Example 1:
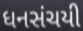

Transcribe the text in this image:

ધનસંચયી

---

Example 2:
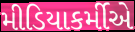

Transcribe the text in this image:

મીડિયાકર્મીએ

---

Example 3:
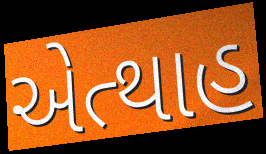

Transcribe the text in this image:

એત્થાહ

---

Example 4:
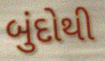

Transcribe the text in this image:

બુંદોથી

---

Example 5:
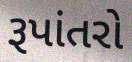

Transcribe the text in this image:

રૂપાંતરો